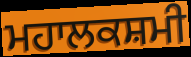
ਮਹਾਲਕਸ਼ਮੀ